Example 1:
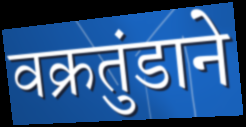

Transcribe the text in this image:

वक्रतुंडाने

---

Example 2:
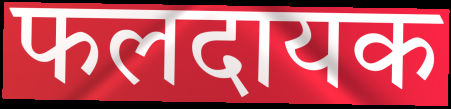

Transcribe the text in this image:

फलदायक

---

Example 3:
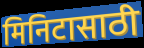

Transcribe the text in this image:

मिनिटासाठी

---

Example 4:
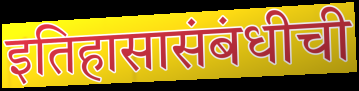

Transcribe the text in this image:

इतिहासासंबंधीची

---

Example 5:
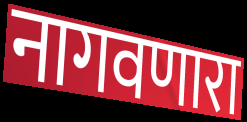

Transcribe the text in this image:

नागवणारा